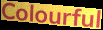
Colourful